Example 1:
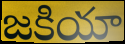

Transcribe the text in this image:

జకియా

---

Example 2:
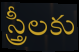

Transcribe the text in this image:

స్త్రీలకు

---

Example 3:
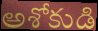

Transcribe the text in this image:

అశోకుడి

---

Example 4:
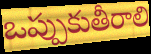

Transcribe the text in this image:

ఒప్పుకుతీరాలి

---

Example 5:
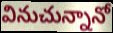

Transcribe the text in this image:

వినుచున్నానో